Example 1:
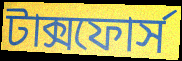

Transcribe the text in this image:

টাক্সফোর্স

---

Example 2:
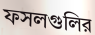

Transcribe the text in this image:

ফসলগুলির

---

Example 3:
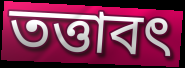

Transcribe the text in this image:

তত্তাবৎ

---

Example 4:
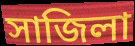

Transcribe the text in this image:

সাজিলা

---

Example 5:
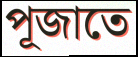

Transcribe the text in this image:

পূজাতে